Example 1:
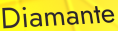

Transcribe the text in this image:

Diamante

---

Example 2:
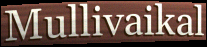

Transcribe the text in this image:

Mullivaikal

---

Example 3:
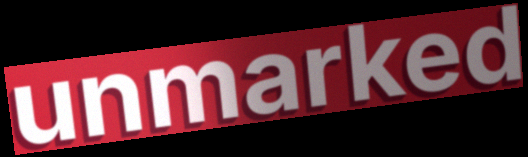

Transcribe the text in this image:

unmarked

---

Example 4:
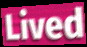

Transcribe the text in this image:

Lived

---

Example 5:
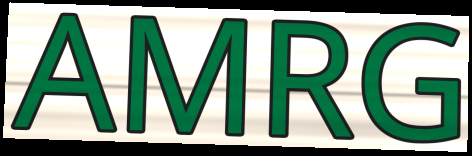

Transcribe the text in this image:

AMRG